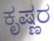
ಕೃಷ್ಣರ